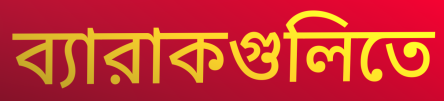
ব্যারাকগুলিতে